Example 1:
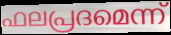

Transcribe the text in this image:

ഫലപ്രദമെന്ന്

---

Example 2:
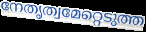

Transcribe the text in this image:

നേതൃത്വമേറ്റെടുത്ത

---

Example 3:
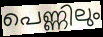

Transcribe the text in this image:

പെണ്ണിലും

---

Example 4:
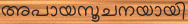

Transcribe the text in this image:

അപായസൂചനയായി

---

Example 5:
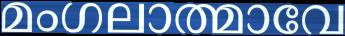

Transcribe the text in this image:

മംഗലാത്മാവേ